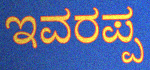
ಇವರಪ್ಪ